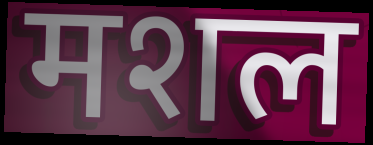
मशल